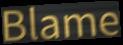
Blame